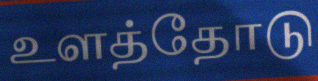
உளத்தோடு